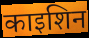
काइशिन